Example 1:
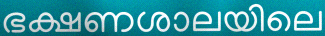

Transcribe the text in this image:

ഭക്ഷണശാലയിലെ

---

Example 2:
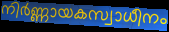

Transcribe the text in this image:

നിർണ്ണായകസ്വാധീനം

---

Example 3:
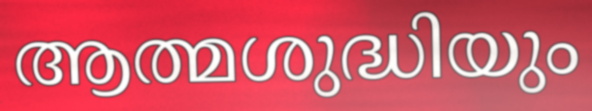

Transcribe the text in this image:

ആത്മശുദ്ധിയും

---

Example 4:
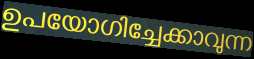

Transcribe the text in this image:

ഉപയോഗിച്ചേക്കാവുന്ന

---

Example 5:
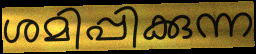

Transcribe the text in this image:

ശമിപ്പിക്കുന്ന